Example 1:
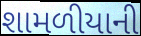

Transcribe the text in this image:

શામળીયાની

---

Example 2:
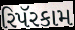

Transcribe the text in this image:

રિપૅરકામ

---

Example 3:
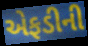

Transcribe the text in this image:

એફડીની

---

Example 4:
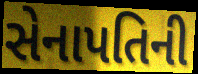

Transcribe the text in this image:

સેનાપતિની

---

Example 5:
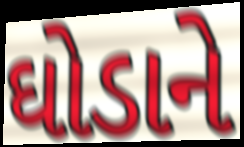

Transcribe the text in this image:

ઘોડાને